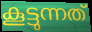
കൂട്ടുന്നത്